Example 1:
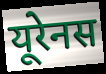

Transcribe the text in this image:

यूरेनस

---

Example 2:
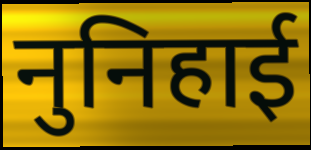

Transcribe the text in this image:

नुनिहाई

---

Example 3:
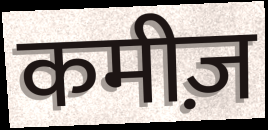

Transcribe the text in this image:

कमीज़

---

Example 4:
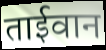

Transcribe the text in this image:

ताईवान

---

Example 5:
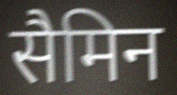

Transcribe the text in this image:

सैमिन